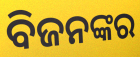
ବିଜନଙ୍କର